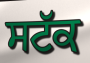
ਸਟੱਕ